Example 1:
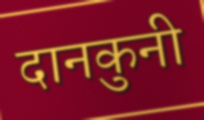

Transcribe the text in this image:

दानकुनी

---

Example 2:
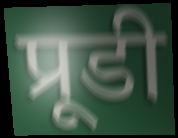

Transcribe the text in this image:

प्रूडी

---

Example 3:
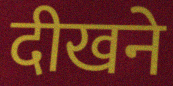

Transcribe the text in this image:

दीखने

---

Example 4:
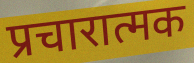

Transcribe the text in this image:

प्रचारात्मक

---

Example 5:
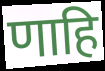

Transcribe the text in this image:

णाहि